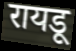
रायडू